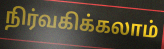
நிர்வகிக்கலாம்